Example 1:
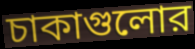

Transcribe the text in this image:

চাকাগুলোর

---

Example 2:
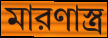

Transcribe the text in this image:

মারণাস্ত্র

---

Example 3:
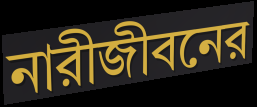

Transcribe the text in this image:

নারীজীবনের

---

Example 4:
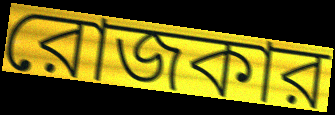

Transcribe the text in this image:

রোজকার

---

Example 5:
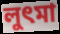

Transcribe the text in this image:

লুৎমা